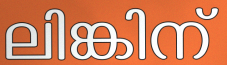
ലിങ്കിന്